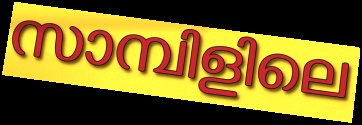
സാമ്പിളിലെ